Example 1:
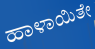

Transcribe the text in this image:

ಹಾಳಾಯಿತೇ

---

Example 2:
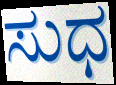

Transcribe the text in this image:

ಸುಧ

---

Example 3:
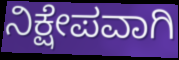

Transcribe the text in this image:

ನಿಕ್ಷೇಪವಾಗಿ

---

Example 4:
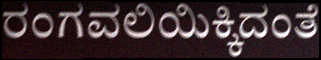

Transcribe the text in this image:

ರಂಗವಲಿಯಿಕ್ಕಿದಂತೆ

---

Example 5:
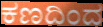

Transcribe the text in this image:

ಕಣದಿಂದ